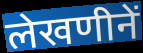
लेखणीनें